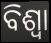
ବିଶ୍ବା